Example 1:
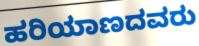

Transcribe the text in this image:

ಹರಿಯಾಣದವರು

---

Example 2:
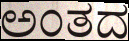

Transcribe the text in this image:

ಅಂತದ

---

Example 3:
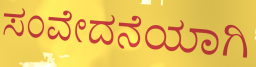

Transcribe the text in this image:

ಸಂವೇದನೆಯಾಗಿ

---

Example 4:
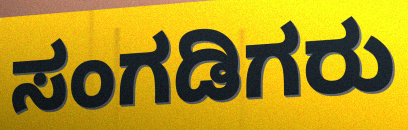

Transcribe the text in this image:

ಸಂಗಡಿಗರು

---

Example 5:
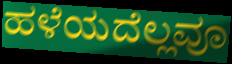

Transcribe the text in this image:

ಹಳೆಯದೆಲ್ಲವೂ